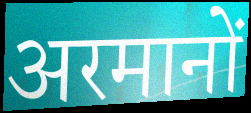
अरमानों